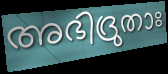
അഭിദ്രുതാഃ